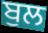
ਬੁਲ